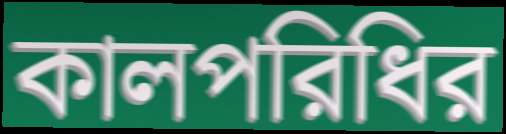
কালপরিধির